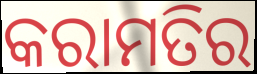
କରାମତିର